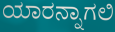
ಯಾರನ್ನಾಗಲಿ